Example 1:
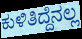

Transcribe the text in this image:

ಕುಳಿತಿದ್ದೆನಲ್ಲ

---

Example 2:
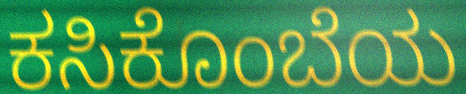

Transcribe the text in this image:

ಕಸಿಕೊಂಬೆಯ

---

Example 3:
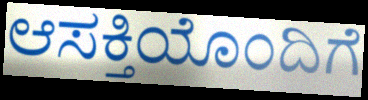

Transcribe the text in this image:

ಆಸಕ್ತಿಯೊಂದಿಗೆ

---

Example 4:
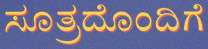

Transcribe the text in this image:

ಸೂತ್ರದೊಂದಿಗೆ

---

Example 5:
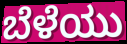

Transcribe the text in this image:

ಬೆಳೆಯು